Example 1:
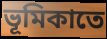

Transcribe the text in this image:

ভূমিকাতে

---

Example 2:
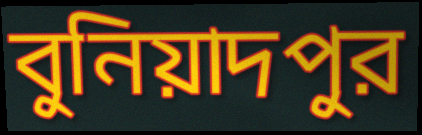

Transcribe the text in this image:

বুনিয়াদপুর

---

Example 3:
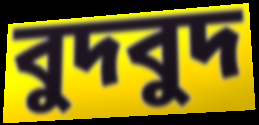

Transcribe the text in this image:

বুদবুদ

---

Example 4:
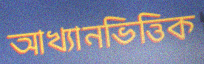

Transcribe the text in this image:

আখ্যানভিত্তিক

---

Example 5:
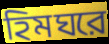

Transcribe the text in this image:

হিমঘরে